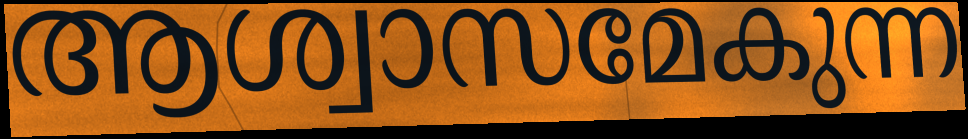
ആശ്വാസമേകുന്ന